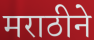
मराठीने